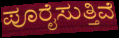
ಪೂರೈಸುತ್ತಿವೆ